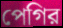
পেগির